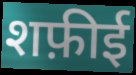
शफ़ीई